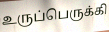
உருப்பெருக்கி